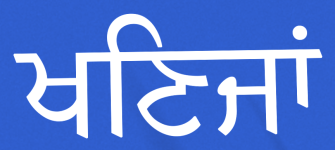
ਖਣਿਜਾਂ